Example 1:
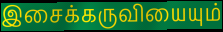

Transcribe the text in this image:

இசைக்கருவியையும்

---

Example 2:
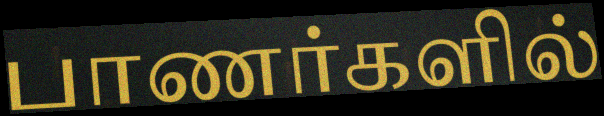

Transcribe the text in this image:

பாணர்களில்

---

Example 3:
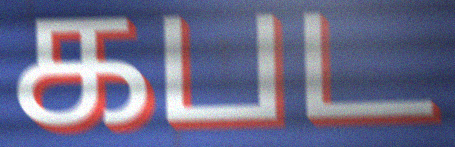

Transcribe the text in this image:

கபட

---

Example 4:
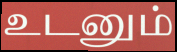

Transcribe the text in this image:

உடனும்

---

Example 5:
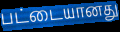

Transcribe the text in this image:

பட்டையானது